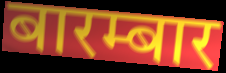
बारम्बार